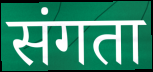
संगता